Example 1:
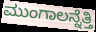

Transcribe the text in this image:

ಮುಂಗಾಲನ್ನೆತ್ತಿ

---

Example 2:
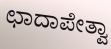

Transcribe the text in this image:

ಛಾದಾಪೇತ್ವಾ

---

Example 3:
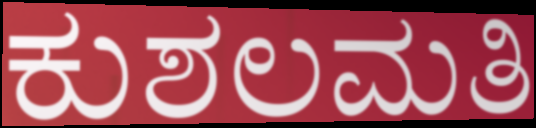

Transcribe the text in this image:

ಕುಶಲಮತಿ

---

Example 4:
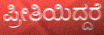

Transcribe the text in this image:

ಪ್ರೀತಿಯಿದ್ದರೆ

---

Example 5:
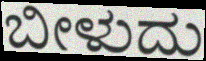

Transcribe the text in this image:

ಬೀಳುದು